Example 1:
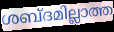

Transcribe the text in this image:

ശബ്ദമില്ലാത്ത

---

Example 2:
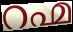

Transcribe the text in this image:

റഹ്മ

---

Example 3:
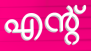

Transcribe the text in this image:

എന്റ്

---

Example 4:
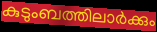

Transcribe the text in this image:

കുടുംബത്തിലാർക്കും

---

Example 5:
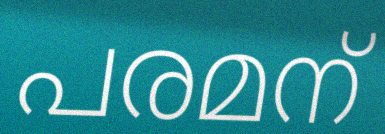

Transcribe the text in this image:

പരമന്